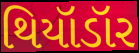
થિયૉડૉર